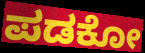
ಪಡಕೋ